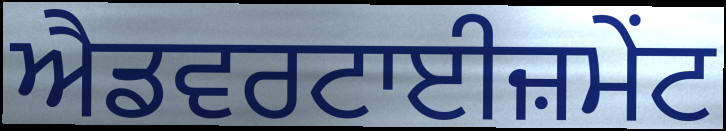
ਐਡਵਰਟਾਈਜ਼ਮੇਂਟ